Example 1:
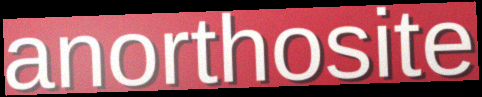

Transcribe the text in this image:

anorthosite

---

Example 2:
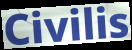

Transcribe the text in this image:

Civilis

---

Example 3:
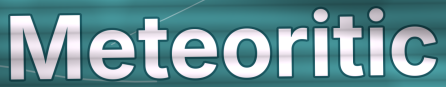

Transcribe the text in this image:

Meteoritic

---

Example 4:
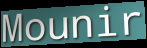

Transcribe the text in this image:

Mounir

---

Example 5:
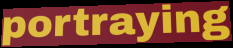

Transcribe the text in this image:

portraying